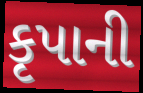
કૃપાની